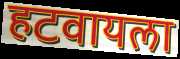
हटवायला